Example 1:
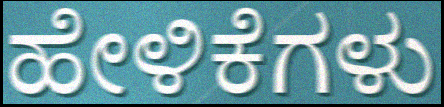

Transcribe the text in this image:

ಹೇಳಿಕೆಗಳು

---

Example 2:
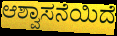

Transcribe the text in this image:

ಆಶ್ವಾಸನೆಯಿದೆ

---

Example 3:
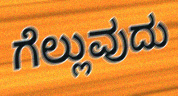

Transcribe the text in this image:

ಗೆಲ್ಲುವುದು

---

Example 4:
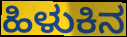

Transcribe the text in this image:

ಹಿಳುಕಿನ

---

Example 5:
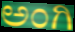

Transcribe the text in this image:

ಅಂಗಿ